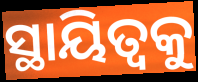
ସ୍ଥାୟିତ୍ୱକୁ